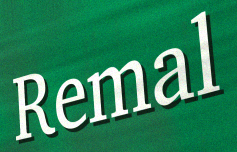
Remal